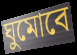
ঘুমোবে